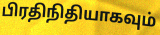
பிரதிநிதியாகவும்